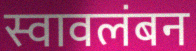
स्वावलंबन